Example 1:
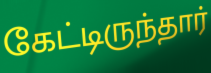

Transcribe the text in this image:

கேட்டிருந்தார்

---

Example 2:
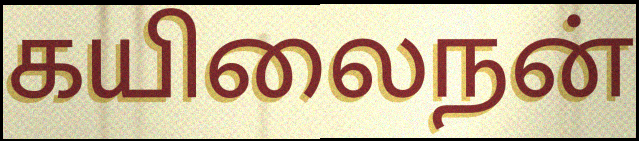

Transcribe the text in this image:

கயிலைநன்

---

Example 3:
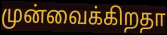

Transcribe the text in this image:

முன்வைக்கிறதா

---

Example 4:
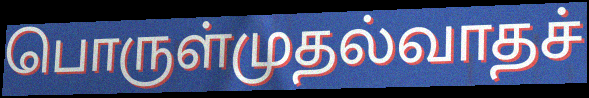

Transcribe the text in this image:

பொருள்முதல்வாதச்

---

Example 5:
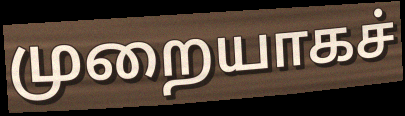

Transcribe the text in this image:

முறையாகச்